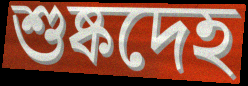
শুষ্কদেহ